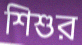
শিশুর